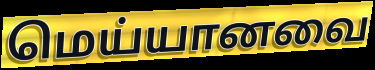
மெய்யானவை